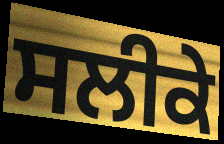
ਸਲੀਕੇ